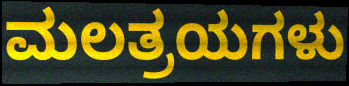
ಮಲತ್ರಯಗಳು